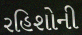
રહિશોની